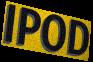
IPOD